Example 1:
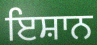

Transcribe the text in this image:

ਇਸ਼ਾਨ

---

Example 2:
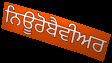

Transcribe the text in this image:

ਨਿਊਰੋਬੈਵੀਅਰ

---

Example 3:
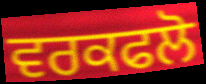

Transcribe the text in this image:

ਵਰਕਫਲੋ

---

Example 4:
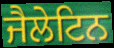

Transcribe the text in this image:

ਜੈਲੇਟਿਨ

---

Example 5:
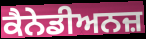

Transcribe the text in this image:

ਕੈਨੇਡੀਅਨਜ਼